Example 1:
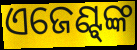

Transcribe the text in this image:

ଏଜେଣ୍ଟ୍‍ଙ୍କ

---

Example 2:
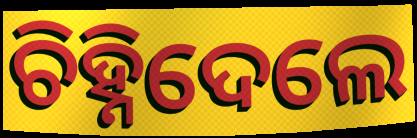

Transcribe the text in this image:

ଚିହ୍ନିଦେଲେ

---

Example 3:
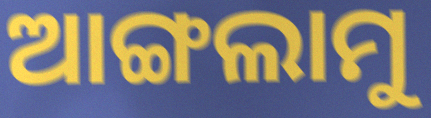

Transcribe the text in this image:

ଆଙ୍ଗଲାମୁ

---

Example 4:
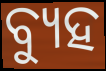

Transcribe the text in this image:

ବ୍ୟୁହ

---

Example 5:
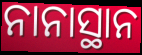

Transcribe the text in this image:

ନାନାସ୍ଥାନ